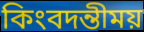
কিংবদন্তীময়